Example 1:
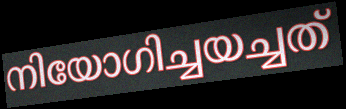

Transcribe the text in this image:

നിയോഗിച്ചയച്ചത്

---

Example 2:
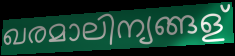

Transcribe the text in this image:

ഖരമാലിന്യങ്ങള്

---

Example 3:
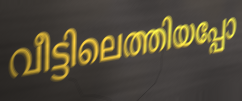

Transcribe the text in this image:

വീട്ടിലെത്തിയപ്പോ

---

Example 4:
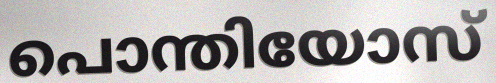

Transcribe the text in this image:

പൊന്തിയോസ്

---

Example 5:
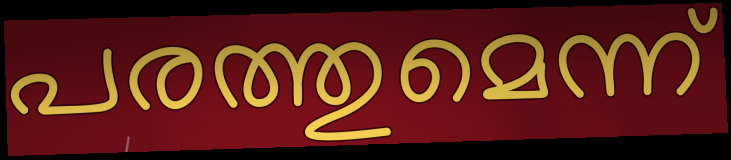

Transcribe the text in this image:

പരത്തുമെന്ന്